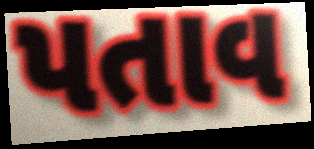
પતાવ